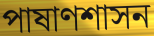
পাষাণশাসন